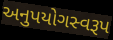
અનુપયોગસ્વરૂપ